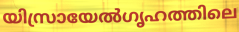
യിസ്രായേൽഗൃഹത്തിലെ